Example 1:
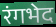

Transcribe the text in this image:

रंगभेद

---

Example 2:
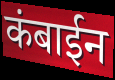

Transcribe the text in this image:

कंबाईन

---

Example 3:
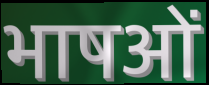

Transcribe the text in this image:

भाषओं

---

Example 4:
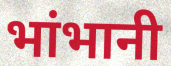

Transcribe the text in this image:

भांभानी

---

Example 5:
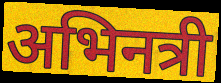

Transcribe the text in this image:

अभिनत्री